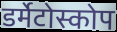
डर्मेटोस्कोप